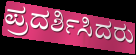
ಪ್ರದರ್ಶಿಸಿದರು